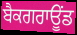
ਬੈਕਗਰਾਊਂਡ